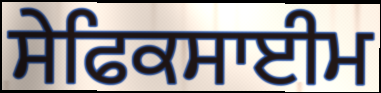
ਸੇਫਿਕਸਾਈਮ